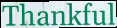
Thankful